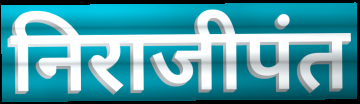
निराजीपंत